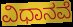
ವಿಧಾನವೆ